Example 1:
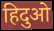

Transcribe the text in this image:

हिदुओ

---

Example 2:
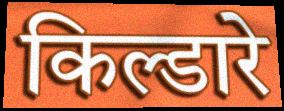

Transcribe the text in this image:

किल्डारे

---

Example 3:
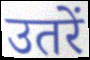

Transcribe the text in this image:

उतरें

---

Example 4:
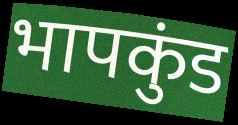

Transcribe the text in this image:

भापकुंड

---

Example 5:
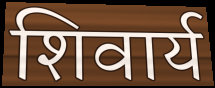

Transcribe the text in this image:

शिवार्य